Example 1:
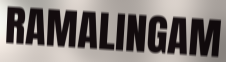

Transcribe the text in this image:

RAMALINGAM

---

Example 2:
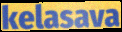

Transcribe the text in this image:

kelasava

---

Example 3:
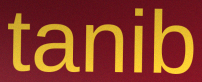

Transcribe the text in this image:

tanib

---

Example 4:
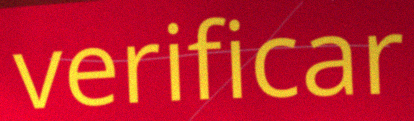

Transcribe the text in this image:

verificar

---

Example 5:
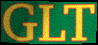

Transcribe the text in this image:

GLT